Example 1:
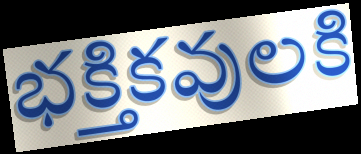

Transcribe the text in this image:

భక్తికవులకి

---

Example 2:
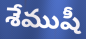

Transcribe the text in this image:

శేముషీ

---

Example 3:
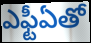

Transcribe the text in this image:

ఎఫ్టీఏతో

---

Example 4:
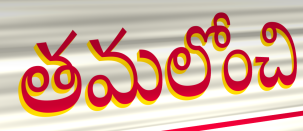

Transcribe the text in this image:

తమలోంచి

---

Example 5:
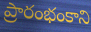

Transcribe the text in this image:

ప్రారంభంకాని